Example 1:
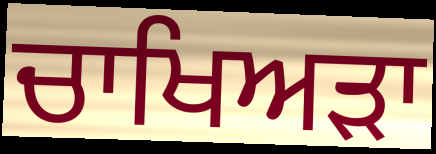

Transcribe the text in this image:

ਚਾਖਿਅੜਾ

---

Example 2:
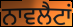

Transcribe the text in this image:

ਨਾਵਲੈਟਾਂ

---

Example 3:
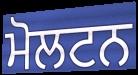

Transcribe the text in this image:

ਮੋਲਟਨ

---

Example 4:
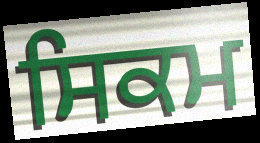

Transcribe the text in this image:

ਸਿਕਮ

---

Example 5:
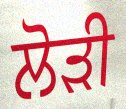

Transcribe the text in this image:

ਲੋੜੀ